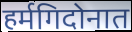
हर्मगिदोनात